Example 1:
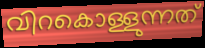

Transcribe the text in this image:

വിറകൊള്ളുന്നത്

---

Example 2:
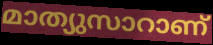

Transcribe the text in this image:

മാത്യുസാറാണ്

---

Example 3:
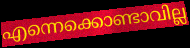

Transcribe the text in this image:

എന്നെക്കൊണ്ടാവില്ല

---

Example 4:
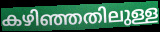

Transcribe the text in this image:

കഴിഞ്ഞതിലുള്ള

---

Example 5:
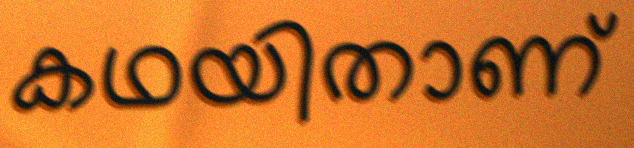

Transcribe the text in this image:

കഥയിതാണ്